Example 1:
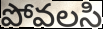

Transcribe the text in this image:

పోవలసి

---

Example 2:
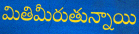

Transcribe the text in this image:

మితిమీరుతున్నాయి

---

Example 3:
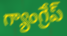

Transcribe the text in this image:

గ్యాంగ్రేప్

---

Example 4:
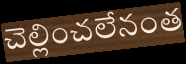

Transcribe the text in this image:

చెల్లించలేనంత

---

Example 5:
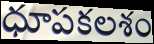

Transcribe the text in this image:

ధూపకలశం